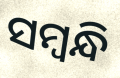
ସମ୍ବନ୍ଧି